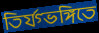
তির্যগ্ভঙ্গিতে